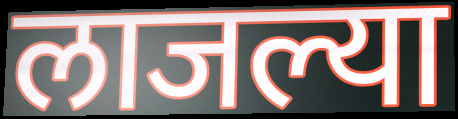
लाजल्या